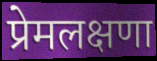
प्रेमलक्षणा